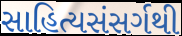
સાહિત્યસંસર્ગથી